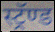
स्ट्रॅण्ड